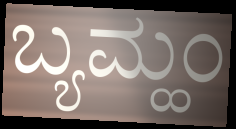
ಬ್ಯಮ್ಹಂ